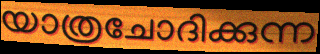
യാത്രചോദിക്കുന്ന